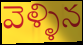
వెళ్ళిన